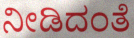
ನೀಡಿದಂತೆ